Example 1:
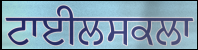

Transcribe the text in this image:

ਟਾਈਲਸਕਲਾ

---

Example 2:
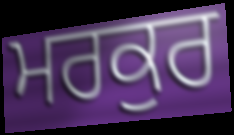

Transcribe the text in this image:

ਮਰਕੁਰ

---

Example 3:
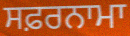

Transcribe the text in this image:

ਸਫ਼ਰਨਾਮਾ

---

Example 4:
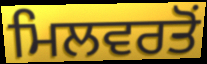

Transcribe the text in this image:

ਮਿਲਵਰਤੋਂ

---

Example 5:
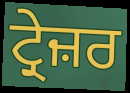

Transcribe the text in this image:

ਟ੍ਰੇਜ਼ਰ